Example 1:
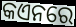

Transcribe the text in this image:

କଏନରେ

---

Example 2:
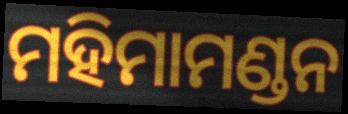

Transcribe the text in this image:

ମହିମାମଣ୍ଡନ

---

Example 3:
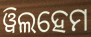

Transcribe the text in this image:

ୱିଲହେମ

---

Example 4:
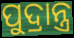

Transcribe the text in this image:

ପୁଦ୍ରାନ୍ତ୍ର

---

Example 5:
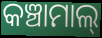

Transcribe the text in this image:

କଞ୍ଚାମାଲ୍